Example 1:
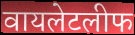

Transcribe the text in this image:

वायलेटलीफ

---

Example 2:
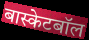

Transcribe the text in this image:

बास्केटबॉल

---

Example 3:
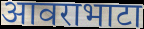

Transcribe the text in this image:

आवराभाटा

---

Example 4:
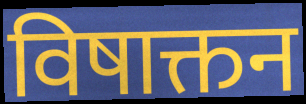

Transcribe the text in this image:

विषाक्तन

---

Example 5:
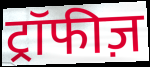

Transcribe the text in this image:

ट्रॉफीज़